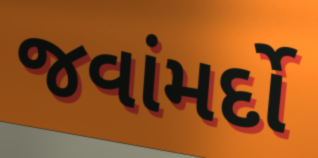
જવાંમર્દો